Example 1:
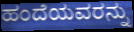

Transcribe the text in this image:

ಹಂದೆಯವರನ್ನು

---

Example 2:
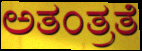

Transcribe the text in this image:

ಅತಂತ್ರತೆ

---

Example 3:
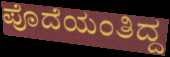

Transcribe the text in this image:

ಪೊದೆಯಂತಿದ್ದ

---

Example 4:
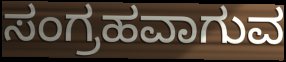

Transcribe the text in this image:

ಸಂಗ್ರಹವಾಗುವ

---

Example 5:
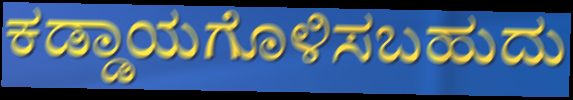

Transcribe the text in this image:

ಕಡ್ಡಾಯಗೊಳಿಸಬಹುದು